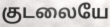
குடலையே